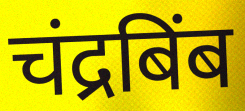
चंद्रबिंब